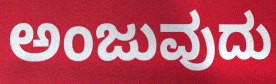
ಅಂಜುವುದು